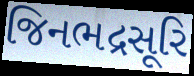
જિનભદ્રસૂરિ